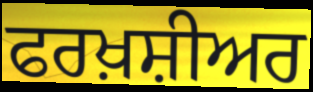
ਫਰਖ਼ਸ਼ੀਅਰ